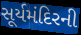
સૂર્યમંદિરની